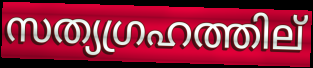
സത്യഗ്രഹത്തില്